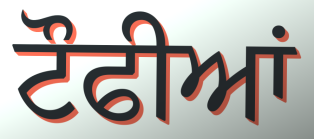
ਟੌਫੀਆਂ